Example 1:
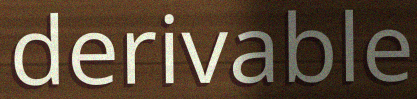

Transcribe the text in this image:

derivable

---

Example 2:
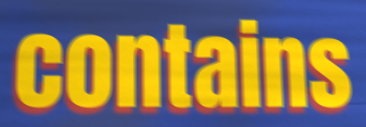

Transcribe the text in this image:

contains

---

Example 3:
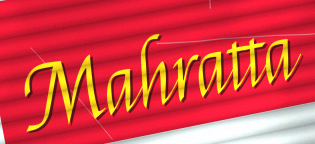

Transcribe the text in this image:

Mahratta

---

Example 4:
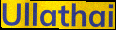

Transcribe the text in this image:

Ullathai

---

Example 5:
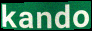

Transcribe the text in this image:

kando